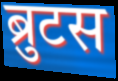
ब्रुटस